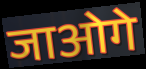
जाओगे